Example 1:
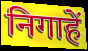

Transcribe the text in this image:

निगाहें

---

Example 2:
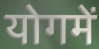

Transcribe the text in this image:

योगमें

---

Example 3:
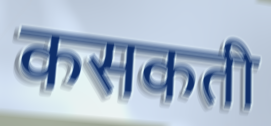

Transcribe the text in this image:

कसकती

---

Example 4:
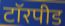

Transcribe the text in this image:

टॉरपीड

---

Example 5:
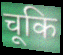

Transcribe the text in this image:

चूकि